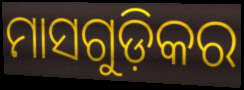
ମାସଗୁଡ଼ିକର